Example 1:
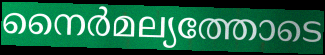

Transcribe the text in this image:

നൈർമല്യത്തോടെ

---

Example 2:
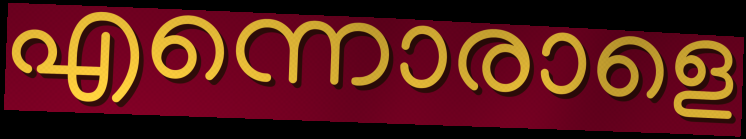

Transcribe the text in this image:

എന്നൊരാളെ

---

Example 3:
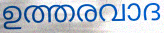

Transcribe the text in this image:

ഉത്തരവാദ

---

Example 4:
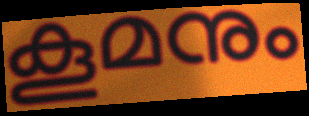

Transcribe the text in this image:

കൂമനും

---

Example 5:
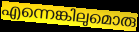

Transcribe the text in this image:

എന്നെങ്കിലുമൊരു